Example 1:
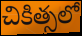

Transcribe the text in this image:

చికిత్సలో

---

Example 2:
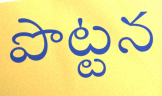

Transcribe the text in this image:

పొట్టన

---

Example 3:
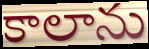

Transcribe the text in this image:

కాలాను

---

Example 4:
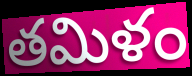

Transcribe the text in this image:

తమిళం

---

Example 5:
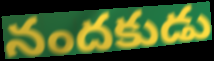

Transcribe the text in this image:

నందకుడు